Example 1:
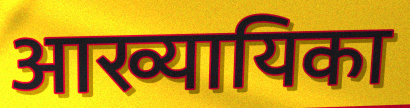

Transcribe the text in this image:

आख्यायिका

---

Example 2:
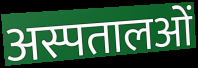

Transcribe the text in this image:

अस्पतालओं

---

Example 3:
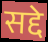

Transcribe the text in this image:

सद्दे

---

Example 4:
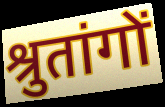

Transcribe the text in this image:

श्रुतांगों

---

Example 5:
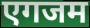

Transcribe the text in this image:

एगजम